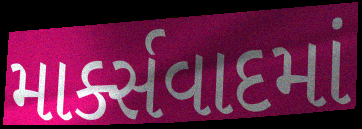
માર્ક્સવાદમાં